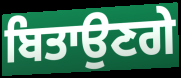
ਬਿਤਾਉਣਗੇ